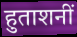
हुताशनीं